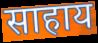
साहाय